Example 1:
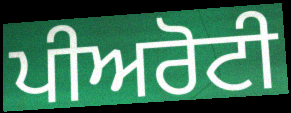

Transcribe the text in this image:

ਪੀਅਰੋਟੀ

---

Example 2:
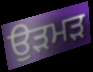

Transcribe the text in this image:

ਉੜਮੜ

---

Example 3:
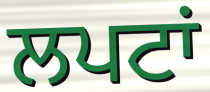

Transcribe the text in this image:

ਲਪਟਾਂ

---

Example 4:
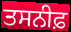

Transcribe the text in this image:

ਤਸਨੀਫ਼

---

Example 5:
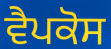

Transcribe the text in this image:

ਵੈਪਕੋਸ